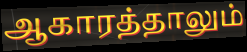
ஆகாரத்தாலும்